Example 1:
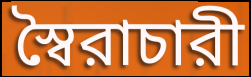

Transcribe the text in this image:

স্বৈরাচারী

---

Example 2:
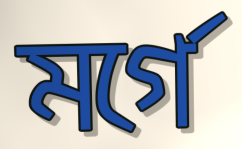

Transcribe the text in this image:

মর্গে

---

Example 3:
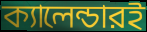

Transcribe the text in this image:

ক্যালেন্ডারই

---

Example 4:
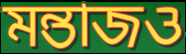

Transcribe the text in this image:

মন্তাজও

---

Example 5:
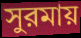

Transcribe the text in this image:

সুরমায়